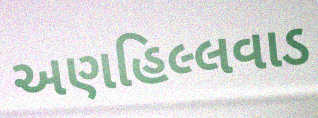
અણહિલ્લવાડ